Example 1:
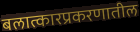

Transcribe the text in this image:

बलात्कारप्रकरणातील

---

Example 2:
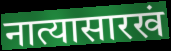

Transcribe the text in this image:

नात्यासारखं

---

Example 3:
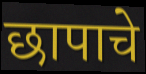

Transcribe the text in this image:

छापाचे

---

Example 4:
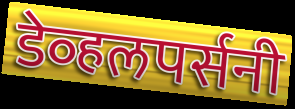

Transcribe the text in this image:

डेव्हलपर्सनी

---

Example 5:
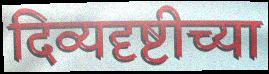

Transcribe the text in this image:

दिव्यदृष्टीच्या